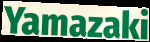
Yamazaki